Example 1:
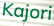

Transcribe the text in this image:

Kajori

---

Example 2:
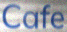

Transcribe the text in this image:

Cafe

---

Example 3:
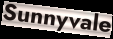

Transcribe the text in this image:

Sunnyvale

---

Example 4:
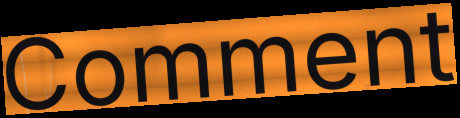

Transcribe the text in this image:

Comment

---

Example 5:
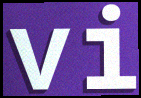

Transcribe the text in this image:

vi